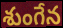
శుంగేన